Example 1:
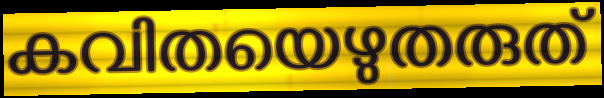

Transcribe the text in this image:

കവിതയെഴുതരുത്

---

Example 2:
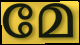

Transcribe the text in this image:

മേ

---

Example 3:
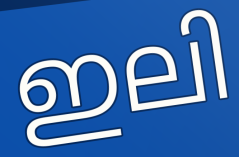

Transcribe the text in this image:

ഇലി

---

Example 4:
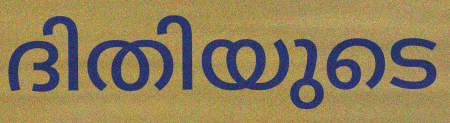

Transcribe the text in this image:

ദിതിയുടെ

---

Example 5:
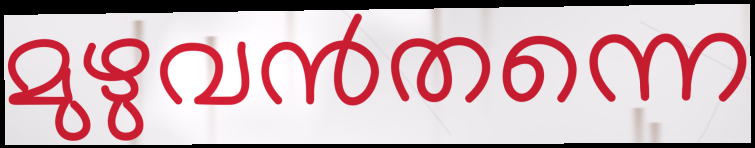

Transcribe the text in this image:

മുഴുവൻതന്നെ